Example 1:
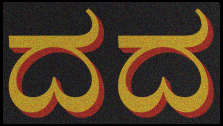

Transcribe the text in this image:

ದದ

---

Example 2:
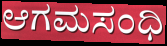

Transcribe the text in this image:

ಆಗಮಸಂಧಿ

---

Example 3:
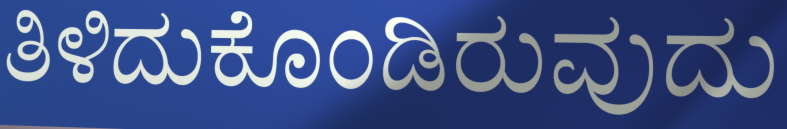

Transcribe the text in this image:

ತಿಳಿದುಕೊಂಡಿರುವುದು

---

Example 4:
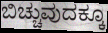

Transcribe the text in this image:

ಬಿಚ್ಚುವುದಕ್ಕೂ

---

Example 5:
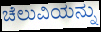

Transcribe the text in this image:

ಚೆಲುವಿಯನ್ನು